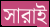
সারাই